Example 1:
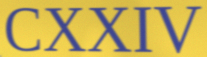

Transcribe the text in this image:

CXXIV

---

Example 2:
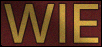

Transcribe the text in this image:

WIE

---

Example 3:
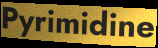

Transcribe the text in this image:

Pyrimidine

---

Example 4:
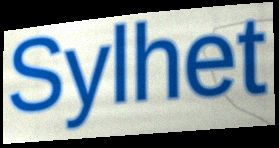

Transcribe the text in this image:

Sylhet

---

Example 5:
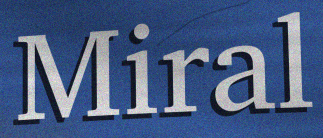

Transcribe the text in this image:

Miral